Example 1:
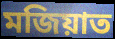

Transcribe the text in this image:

মজিয়াত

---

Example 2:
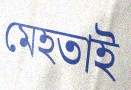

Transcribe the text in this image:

মেহতাই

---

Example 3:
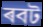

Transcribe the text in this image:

ৰবট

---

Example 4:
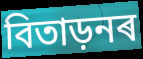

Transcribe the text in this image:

বিতাড়নৰ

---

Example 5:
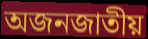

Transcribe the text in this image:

অজনজাতীয়